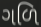
ગળિ